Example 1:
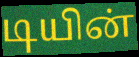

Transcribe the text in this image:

டியின்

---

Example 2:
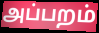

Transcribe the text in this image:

அப்பறம்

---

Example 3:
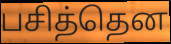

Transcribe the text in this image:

பசித்தென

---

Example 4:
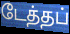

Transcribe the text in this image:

டேத்தப்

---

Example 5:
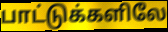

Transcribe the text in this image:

பாட்டுக்களிலே